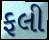
ફલી